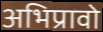
अभिप्रावो